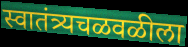
स्वातंत्र्यचळवळीला